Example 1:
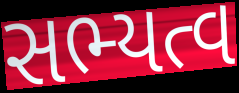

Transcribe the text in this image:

સભ્યત્વ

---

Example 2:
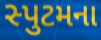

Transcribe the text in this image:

સ્પુટમના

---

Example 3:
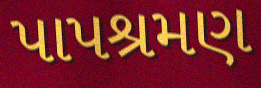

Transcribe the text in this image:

પાપશ્રમણ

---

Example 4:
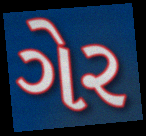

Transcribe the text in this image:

ગેર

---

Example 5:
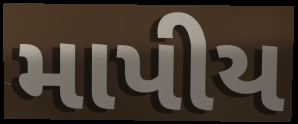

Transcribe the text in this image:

માપીય